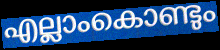
എല്ലാംകൊണ്ടും